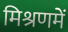
मिश्रणमें